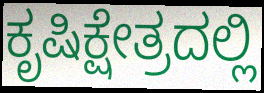
ಕೃಷಿಕ್ಷೇತ್ರದಲ್ಲಿ